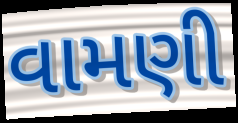
વામણી